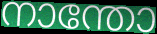
നാന്തോ